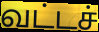
வட்டச்